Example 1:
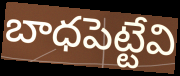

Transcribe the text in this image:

బాధపెట్టేవి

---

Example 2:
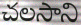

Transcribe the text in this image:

చలసాని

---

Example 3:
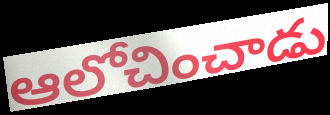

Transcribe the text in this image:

ఆలోచించాడు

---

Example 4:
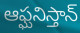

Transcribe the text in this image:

ఆఫ్ఘనిస్తాన్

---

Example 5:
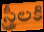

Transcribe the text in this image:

స్త్రీలకి